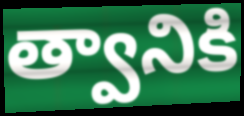
త్వానికి